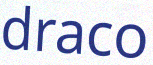
draco